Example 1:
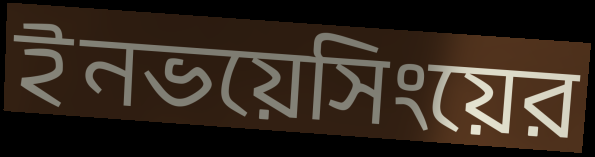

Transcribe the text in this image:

ইনভয়েসিংয়ের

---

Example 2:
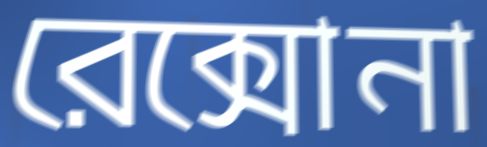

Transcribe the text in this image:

রেক্সোনা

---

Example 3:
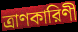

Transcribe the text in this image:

ত্রাণকারিণী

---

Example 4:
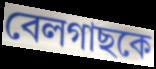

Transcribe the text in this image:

বেলগাছকে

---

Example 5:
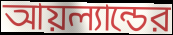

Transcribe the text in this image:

আয়ল্যান্ডের